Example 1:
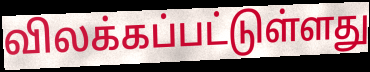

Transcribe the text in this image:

விலக்கப்பட்டுள்ளது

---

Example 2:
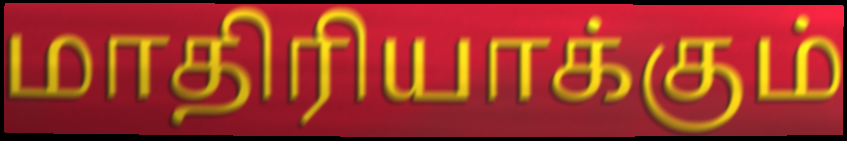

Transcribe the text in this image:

மாதிரியாக்கும்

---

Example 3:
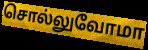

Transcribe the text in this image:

சொல்லுவோமா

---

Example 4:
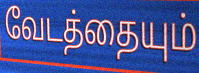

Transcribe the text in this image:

வேடத்தையும்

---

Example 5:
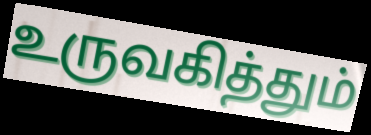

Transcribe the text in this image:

உருவகித்தும்